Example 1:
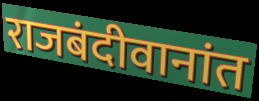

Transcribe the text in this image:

राजबंदीवानांत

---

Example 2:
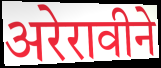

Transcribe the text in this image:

अरेरावीने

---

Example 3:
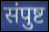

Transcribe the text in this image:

संपुष्ट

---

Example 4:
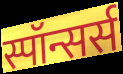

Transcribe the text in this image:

स्पॉन्सर्स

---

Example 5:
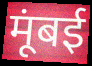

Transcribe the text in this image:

मूंबई